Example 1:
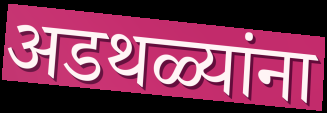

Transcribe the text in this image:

अडथळ्यांना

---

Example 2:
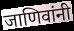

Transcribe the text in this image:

जाणिवांनी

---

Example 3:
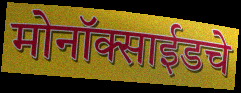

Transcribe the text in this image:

मोनॉक्साईडचे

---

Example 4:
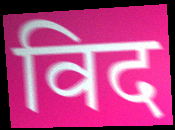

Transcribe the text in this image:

विद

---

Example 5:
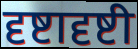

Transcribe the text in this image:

दृष्टादृष्टी